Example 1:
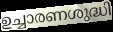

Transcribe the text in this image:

ഉച്ചാരണശുദ്ധി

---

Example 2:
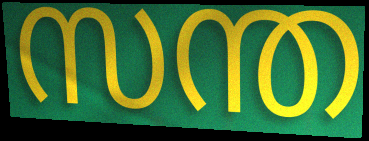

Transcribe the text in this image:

സന്ത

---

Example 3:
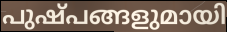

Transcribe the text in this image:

പുഷ്പങ്ങളുമായി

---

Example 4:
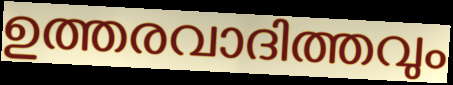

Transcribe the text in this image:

ഉത്തരവാദിത്തവും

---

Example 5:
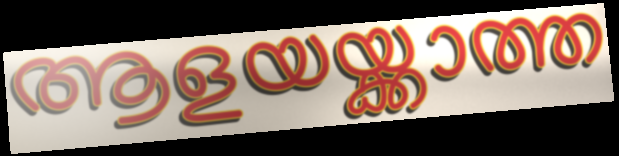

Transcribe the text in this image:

ആളയയ്ക്കാത്ത